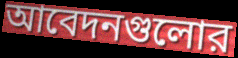
আবেদনগুলোর